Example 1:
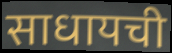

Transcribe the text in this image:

साधायची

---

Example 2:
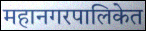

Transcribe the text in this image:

महानगरपालिकेत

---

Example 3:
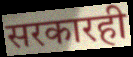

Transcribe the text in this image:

सरकारही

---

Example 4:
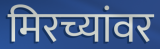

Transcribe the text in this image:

मिरच्यांवर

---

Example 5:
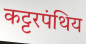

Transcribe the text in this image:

कट्टरपंथिय